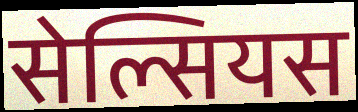
सेल्सियस